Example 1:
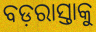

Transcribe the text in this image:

ବଡ଼ରାସ୍ତାକୁ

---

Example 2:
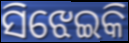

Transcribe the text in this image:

ସିଝେଇକି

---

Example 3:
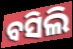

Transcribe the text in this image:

ବସିଲି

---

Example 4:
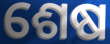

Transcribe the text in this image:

ଶେଷ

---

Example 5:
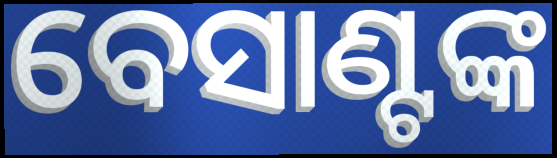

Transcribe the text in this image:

ବେସାଣ୍ଟଙ୍କ